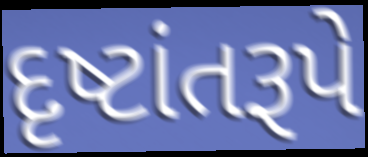
દૃષ્ટાંતરૂપે